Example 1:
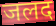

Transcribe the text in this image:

जलद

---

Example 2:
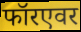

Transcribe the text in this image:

फॉरएवर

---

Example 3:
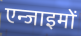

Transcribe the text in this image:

एन्जाइमों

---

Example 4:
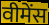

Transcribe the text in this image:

वीमेंस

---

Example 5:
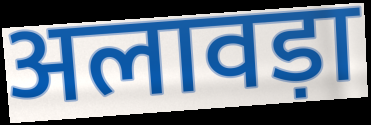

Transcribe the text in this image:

अलावड़ा